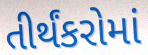
તીર્થંકરોમાં